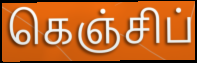
கெஞ்சிப்